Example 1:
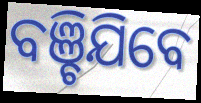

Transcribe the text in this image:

ବଞ୍ଚିଯିବେ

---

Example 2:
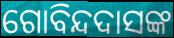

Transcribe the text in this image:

ଗୋବିନ୍ଦଦାସଙ୍କ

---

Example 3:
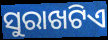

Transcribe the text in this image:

ସୁରାଖଟିଏ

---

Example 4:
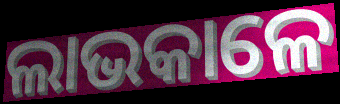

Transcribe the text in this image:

ଲାଭକାଳେ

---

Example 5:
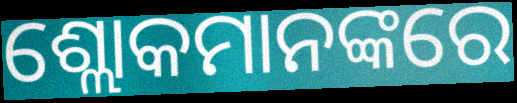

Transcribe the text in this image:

ଶ୍ଲୋକମାନଙ୍କରେ